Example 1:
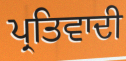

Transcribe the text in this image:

ਪ੍ਰਤਿਵਾਦੀ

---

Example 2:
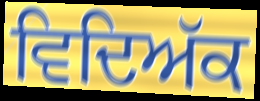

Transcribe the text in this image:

ਵਿਦਿਅੱਕ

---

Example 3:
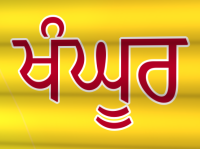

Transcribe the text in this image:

ਖੰਘੂਰ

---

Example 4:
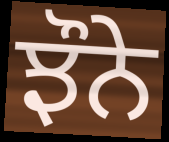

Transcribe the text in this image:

ਝੌਨੇ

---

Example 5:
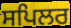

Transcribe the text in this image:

ਸਪਿਲਰ